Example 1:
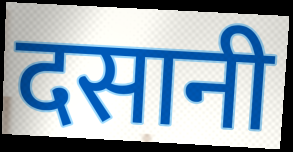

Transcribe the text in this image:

दसानी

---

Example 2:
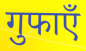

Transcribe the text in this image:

गुफाएँ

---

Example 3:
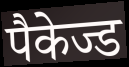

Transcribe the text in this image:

पैकेज्ड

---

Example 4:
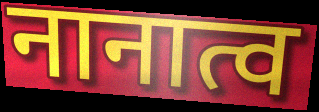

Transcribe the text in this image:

नानात्व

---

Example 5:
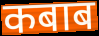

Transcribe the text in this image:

कबाब